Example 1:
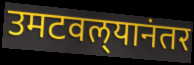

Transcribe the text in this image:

उमटवल्यानंतर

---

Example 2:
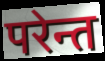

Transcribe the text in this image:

परेन्त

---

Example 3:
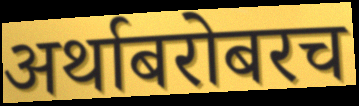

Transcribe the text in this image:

अर्थाबरोबरच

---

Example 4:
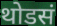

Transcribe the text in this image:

थोडसं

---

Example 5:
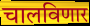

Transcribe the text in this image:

चालविणार